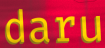
daru